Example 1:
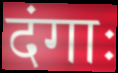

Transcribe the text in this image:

दंगाः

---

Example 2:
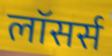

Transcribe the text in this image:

लॉसर्स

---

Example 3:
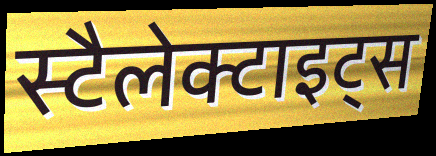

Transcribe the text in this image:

स्टैलेक्टाइट्स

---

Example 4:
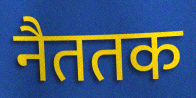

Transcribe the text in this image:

नैततक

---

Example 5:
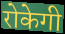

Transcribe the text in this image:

रोकेगी